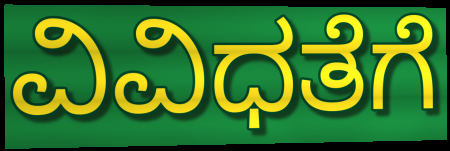
ವಿವಿಧತೆಗೆ